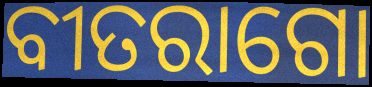
ବୀତରାଗୋ